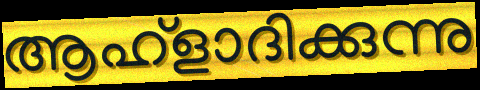
ആഹ്ളാദിക്കുന്നു